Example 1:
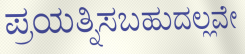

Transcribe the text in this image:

ಪ್ರಯತ್ನಿಸಬಹುದಲ್ಲವೇ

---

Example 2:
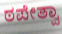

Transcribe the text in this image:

ಠಪೇತ್ವಾ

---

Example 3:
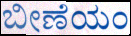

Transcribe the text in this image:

ಬೀಣೆಯಂ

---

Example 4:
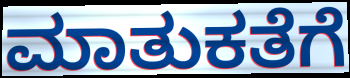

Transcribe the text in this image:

ಮಾತುಕತೆಗೆ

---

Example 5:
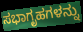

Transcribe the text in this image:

ಸಭಾಗೃಹಗಳನ್ನು